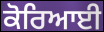
ਕੋਰਿਆਈ